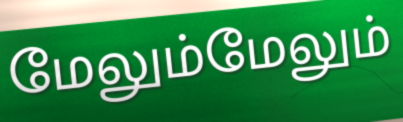
மேலும்மேலும்